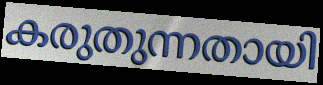
കരുതുന്നതായി